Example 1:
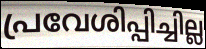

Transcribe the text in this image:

പ്രവേശിപ്പിച്ചില്ല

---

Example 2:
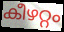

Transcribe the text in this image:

കീഴറ്റം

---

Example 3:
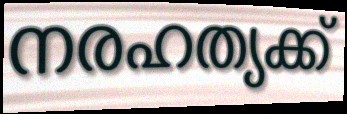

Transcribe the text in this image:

നരഹത്യക്ക്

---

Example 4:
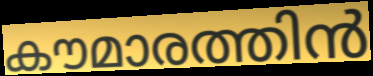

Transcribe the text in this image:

കൗമാരത്തിൻ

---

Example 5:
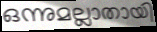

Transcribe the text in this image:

ഒന്നുമല്ലാതായി